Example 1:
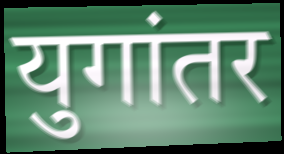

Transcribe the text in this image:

युगांतर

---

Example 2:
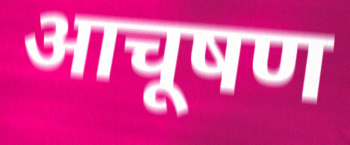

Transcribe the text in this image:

आचूषण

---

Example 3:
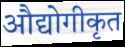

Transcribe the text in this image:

औद्योगीकृत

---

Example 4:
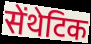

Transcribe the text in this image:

सेंथेटिक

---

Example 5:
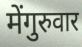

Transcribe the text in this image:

मेंगुरुवार